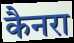
कैनरा